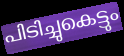
പിടിച്ചുകെട്ടും